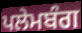
ਪਲੇਮਬੰਗ